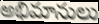
అభిమానులు